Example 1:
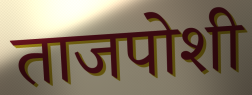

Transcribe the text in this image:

ताजपोशी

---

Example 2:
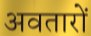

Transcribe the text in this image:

अवतारों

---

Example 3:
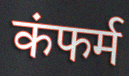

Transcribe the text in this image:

कंफर्म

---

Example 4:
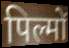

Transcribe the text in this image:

पिल्मों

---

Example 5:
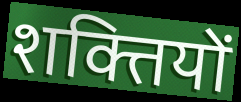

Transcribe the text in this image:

शक्तियों